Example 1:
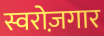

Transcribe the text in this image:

स्वरोज़गार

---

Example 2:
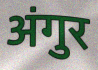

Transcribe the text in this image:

अंगुर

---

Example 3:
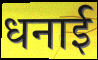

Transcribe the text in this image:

धनाई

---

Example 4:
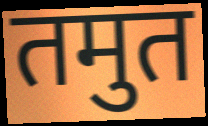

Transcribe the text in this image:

तमुत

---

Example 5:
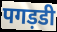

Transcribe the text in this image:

पगड़डी